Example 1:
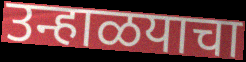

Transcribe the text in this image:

उन्हाळयाचा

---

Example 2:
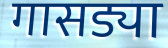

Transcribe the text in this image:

गासड्या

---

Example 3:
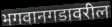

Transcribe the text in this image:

भगवानगडावरील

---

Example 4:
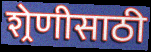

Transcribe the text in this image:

श्रेणीसाठी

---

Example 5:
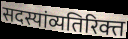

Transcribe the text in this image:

सदस्यांव्यतिरिक्त